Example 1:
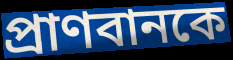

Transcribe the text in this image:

প্রাণবানকে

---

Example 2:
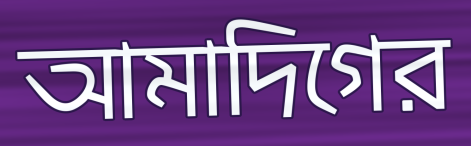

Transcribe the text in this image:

আমাদিগের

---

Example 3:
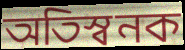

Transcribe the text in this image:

অতিস্বনক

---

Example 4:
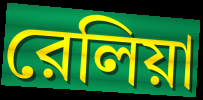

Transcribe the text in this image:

রেলিয়া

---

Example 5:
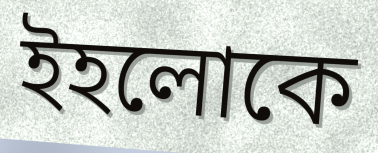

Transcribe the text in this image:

ইহলোকে